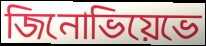
জিনোভিয়েভে